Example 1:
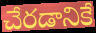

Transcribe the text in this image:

చేరడానికే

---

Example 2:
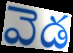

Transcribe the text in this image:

వెడ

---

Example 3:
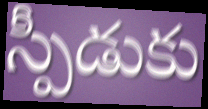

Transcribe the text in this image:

స్పీడుకు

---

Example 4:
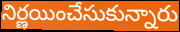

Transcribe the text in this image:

నిర్ణయించేసుకున్నారు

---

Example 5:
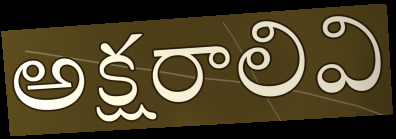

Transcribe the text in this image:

అక్షరాలివి